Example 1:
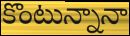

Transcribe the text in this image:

కొంటున్నానా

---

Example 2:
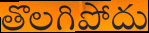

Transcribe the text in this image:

తొలగిపోదు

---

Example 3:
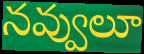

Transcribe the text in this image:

నవ్వులూ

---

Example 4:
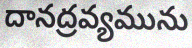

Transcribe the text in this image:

దానద్రవ్యమును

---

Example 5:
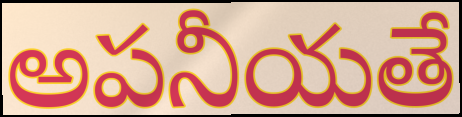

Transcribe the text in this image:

అపనీయతే